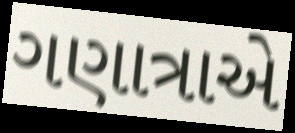
ગણાત્રાએ